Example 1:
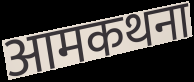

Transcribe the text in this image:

आमकथना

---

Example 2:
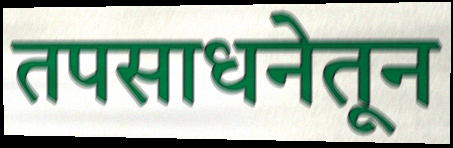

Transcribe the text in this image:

तपसाधनेतून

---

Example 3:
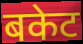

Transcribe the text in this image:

बकेट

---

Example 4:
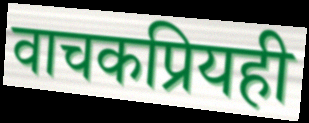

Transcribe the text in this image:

वाचकप्रियही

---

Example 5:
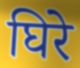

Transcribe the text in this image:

घिरे